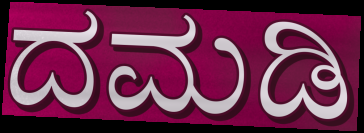
ದಮಡಿ